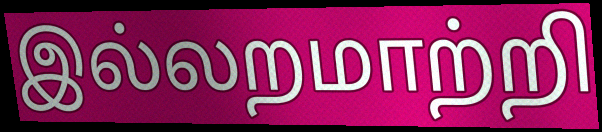
இல்லறமாற்றி